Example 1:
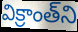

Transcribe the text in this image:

విక్రాంత్‌ని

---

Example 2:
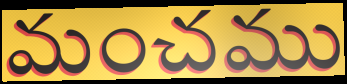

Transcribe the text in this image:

మంచము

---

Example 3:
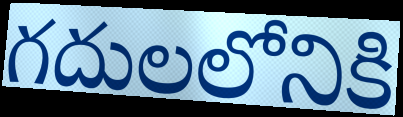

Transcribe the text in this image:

గదులలోనికి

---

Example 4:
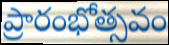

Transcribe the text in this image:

ప్రారంభోత్సవం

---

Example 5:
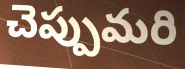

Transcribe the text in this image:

చెప్పుమరి